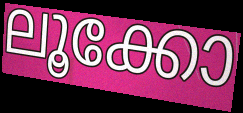
ലൂക്കോ